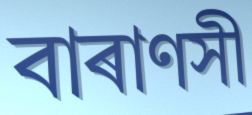
বাৰাণসী